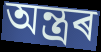
অন্ত্ৰৰ